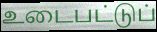
உடைபட்டுப்